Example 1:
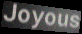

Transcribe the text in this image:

Joyous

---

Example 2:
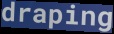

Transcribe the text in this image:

draping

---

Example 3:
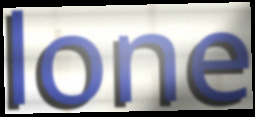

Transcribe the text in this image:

lone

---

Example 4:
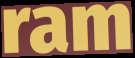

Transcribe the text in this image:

ram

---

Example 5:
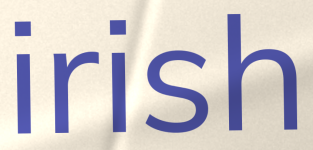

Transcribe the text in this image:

irish